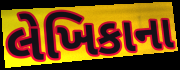
લેખિકાના